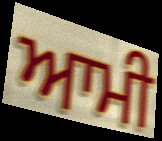
ਆਮੀ